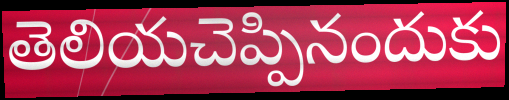
తెలియచెప్పినందుకు